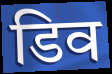
डिव